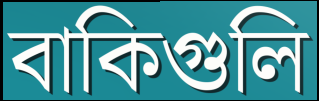
বাকিগুলি